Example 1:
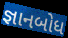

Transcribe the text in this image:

જ્ઞાનબોધ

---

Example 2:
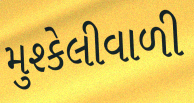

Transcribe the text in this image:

મુશ્કેલીવાળી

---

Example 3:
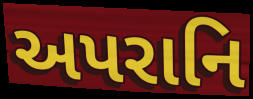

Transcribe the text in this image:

અપરાનિ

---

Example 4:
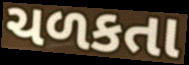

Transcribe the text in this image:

ચળકતા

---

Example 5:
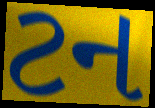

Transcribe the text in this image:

ટન